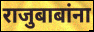
राजुबाबांना